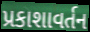
પ્રકાશાવર્તન